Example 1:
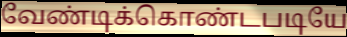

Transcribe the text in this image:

வேண்டிக்கொண்டபடியே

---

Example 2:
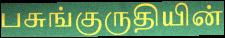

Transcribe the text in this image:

பசுங்குருதியின்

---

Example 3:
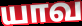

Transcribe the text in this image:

யாவ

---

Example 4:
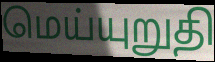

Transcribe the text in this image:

மெய்யுறுதி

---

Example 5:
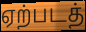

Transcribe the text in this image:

ஏற்படத்